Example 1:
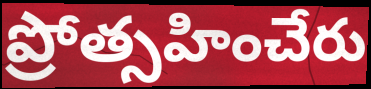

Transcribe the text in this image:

ప్రోత్సహించేరు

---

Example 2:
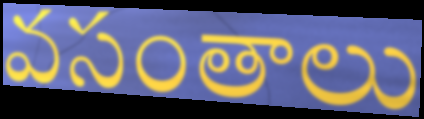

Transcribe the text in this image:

వసంతాలు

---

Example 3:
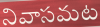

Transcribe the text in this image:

నివాసమట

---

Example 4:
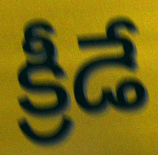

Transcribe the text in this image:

క్రీడే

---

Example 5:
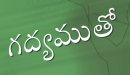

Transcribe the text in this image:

గద్యముతో